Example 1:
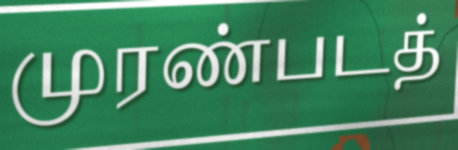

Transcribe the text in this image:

முரண்படத்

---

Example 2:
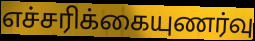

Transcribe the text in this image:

எச்சரிக்கையுணர்வு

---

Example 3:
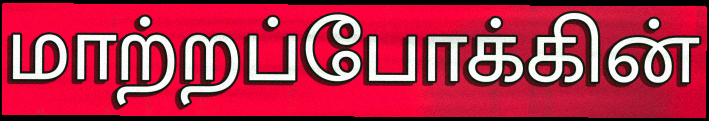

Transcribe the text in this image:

மாற்றப்போக்கின்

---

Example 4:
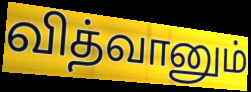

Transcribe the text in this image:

வித்வானும்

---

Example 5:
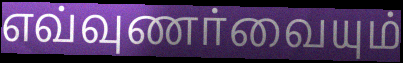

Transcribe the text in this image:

எவ்வுணர்வையும்